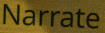
Narrate